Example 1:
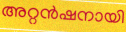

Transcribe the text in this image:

അറ്റൻഷനായി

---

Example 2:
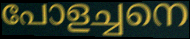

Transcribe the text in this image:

പോളച്ചനെ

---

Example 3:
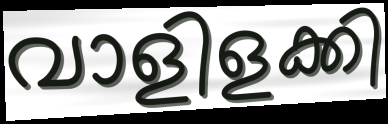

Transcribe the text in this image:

വാളിളക്കി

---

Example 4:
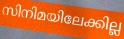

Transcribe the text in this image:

സിനിമയിലേക്കില്ല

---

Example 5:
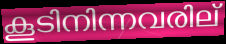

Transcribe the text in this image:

കൂടിനിന്നവരില്